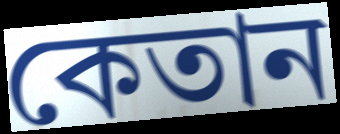
কেতান